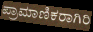
ಪ್ರಾಮಾಣಿಕರಾಗಿರಿ